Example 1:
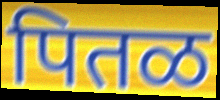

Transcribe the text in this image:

पितळ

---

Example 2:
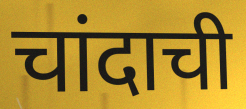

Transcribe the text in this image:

चांदाची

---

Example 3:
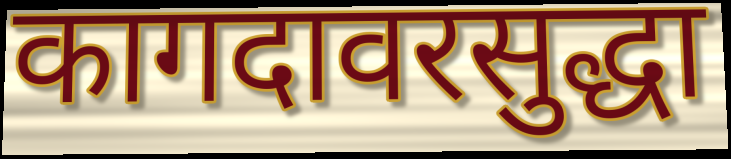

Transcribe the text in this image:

कागदावरसुद्धा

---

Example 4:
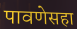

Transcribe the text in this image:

पावणेसहा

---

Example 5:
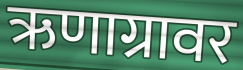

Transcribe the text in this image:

ऋणाग्रावर